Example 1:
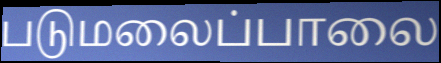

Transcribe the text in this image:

படுமலைப்பாலை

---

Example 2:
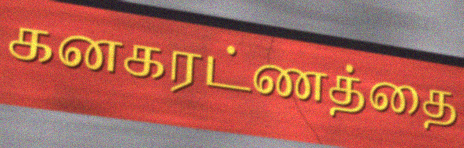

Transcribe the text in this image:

கனகரட்ணத்தை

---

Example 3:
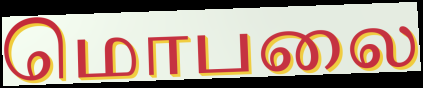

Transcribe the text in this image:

மொபலை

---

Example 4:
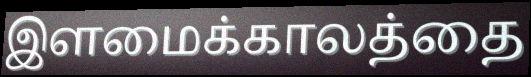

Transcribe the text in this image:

இளமைக்காலத்தை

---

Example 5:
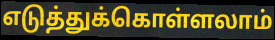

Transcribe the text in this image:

எடுத்துக்கொள்ளலாம்